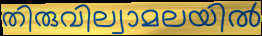
തിരുവില്വാമലയിൽ